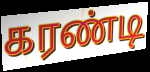
கரண்டி